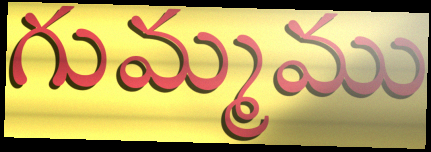
గుమ్మము